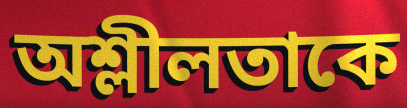
অশ্লীলতাকে